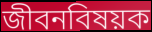
জীবনবিষয়ক